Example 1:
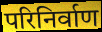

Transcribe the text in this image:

परिनिर्वाण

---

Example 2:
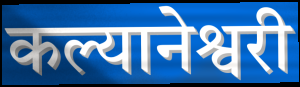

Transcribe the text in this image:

कल्यानेश्वरी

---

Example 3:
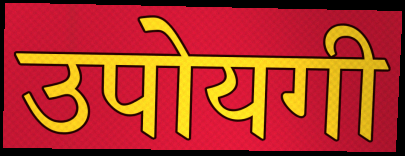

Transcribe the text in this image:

उपोयगी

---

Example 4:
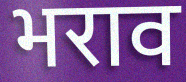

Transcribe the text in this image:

भराव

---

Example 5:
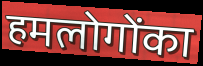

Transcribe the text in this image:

हमलोगोंका